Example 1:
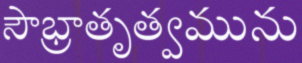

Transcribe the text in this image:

సౌభ్రాతృత్వమును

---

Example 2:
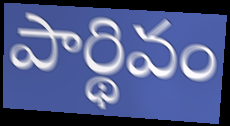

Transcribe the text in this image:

పార్థివం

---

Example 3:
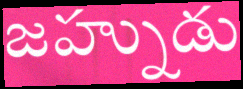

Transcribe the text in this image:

జహ్నుడు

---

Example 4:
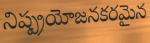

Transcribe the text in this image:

నిష్ప్రయోజనకరమైన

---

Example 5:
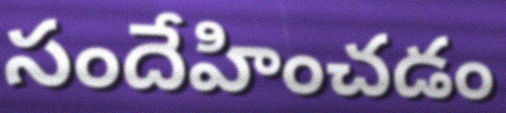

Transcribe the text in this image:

సందేహించడం